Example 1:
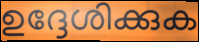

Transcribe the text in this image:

ഉദ്ദേശിക്കുക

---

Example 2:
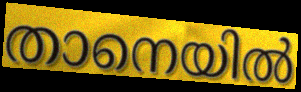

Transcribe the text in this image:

താനെയിൽ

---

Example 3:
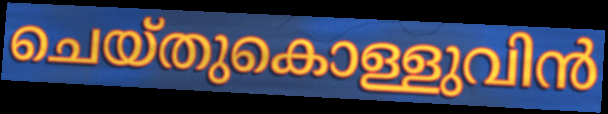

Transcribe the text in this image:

ചെയ്തുകൊള്ളുവിൻ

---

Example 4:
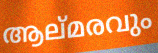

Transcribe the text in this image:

ആല്മരവും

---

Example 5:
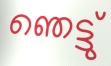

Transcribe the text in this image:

ഞെട്ടു്